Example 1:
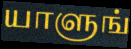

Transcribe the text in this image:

யாளுங்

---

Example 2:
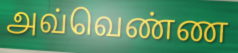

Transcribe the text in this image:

அவ்வெண்ண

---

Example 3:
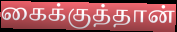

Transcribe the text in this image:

கைக்குத்தான்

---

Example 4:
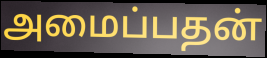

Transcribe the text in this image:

அமைப்பதன்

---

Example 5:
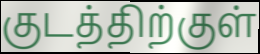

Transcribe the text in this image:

குடத்திற்குள்